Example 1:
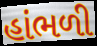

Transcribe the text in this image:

હાંભળી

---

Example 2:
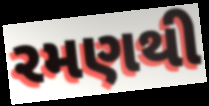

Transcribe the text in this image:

રમણથી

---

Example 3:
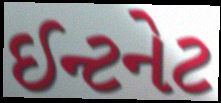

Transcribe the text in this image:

ઈન્ટનેટ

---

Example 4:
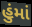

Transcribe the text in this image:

હુંમાં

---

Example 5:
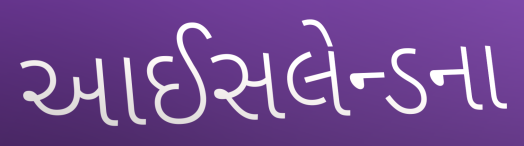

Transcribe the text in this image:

આઈસલેન્ડના